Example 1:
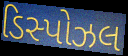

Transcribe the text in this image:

ડિસ્પોઝલ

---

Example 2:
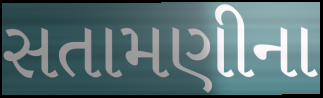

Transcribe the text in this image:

સતામણીના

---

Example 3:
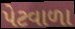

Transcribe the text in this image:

પેટવાળા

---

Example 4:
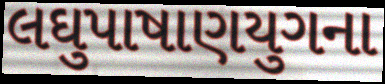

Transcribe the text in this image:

લઘુપાષાણયુગના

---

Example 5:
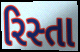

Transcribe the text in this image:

રિસ્તા